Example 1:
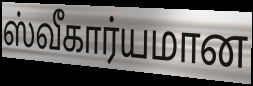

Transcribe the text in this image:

ஸ்வீகார்யமான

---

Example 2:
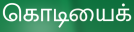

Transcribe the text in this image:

கொடியைக்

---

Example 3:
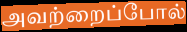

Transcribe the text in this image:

அவற்றைப்போல்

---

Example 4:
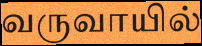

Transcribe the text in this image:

வருவாயில்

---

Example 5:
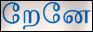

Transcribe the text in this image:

றேனே